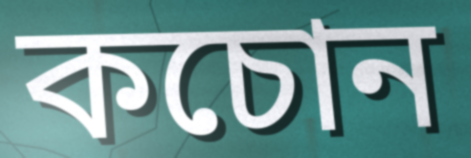
কচোন